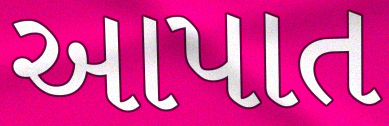
આપાત